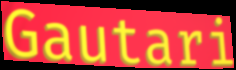
Gautari